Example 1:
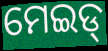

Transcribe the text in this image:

ମେଇଡ୍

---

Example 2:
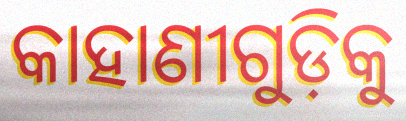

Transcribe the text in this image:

କାହାଣୀଗୁଡ଼ିକୁ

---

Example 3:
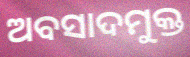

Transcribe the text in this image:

ଅବସାଦମୁକ୍ତ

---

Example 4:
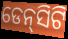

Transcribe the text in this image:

ଡେନ୍‌ସିଟି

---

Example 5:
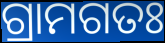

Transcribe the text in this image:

ଗ୍ରାମଗତଃ